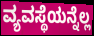
ವ್ಯವಸ್ಥೆಯನ್ನೆಲ್ಲ